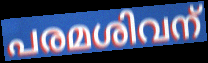
പരമശിവന്